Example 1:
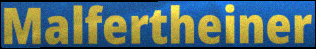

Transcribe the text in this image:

Malfertheiner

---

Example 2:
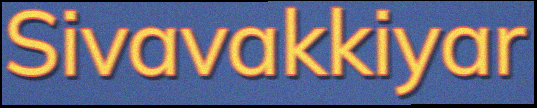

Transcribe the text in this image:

Sivavakkiyar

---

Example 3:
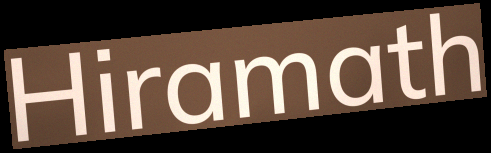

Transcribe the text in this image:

Hiramath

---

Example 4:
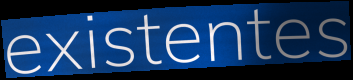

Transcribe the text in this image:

existentes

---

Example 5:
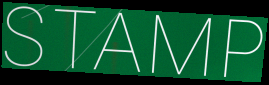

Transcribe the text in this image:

STAMP